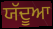
ਯੱਦੂਆ